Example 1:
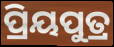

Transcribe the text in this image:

ପ୍ରିୟପୁତ୍ର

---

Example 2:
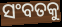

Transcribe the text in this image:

ସଂବତକୁ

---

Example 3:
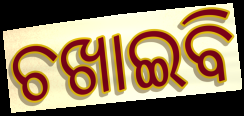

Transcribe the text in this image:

ଚଖାଇବି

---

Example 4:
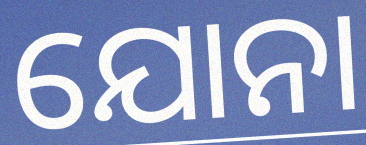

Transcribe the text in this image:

ଯୋନା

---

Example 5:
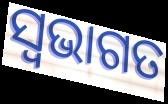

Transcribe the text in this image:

ସ୍ଵଭାଗତ